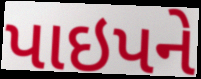
પાઇપને